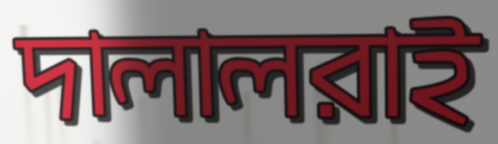
দালালরাই